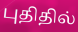
புதிதில்